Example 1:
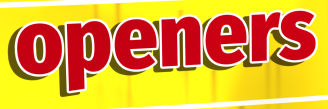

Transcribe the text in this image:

openers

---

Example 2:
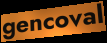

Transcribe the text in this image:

gencoval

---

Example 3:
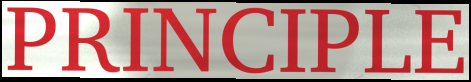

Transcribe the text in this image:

PRINCIPLE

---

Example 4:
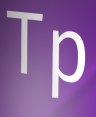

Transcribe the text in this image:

Tp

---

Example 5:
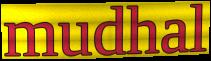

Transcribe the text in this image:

mudhal